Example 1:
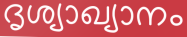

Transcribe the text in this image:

ദൃശ്യാഖ്യാനം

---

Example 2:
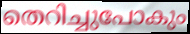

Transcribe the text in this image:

തെറിച്ചുപോകും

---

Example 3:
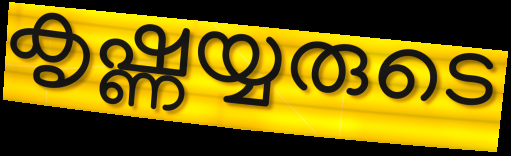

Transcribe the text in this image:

കൃഷ്ണയ്യരുടെ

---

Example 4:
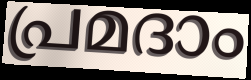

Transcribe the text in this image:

പ്രമദാം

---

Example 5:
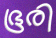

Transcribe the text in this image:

ഭൂരി